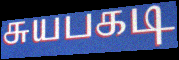
சுயபகடி